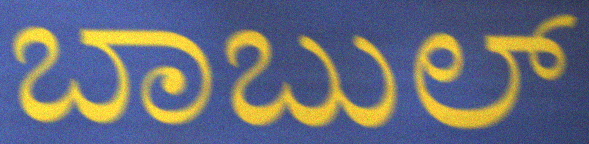
ಬಾಬುಲ್